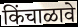
किंचाळावे